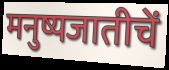
मनुष्यजातीचें